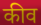
कीव